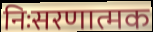
निःसरणात्मक